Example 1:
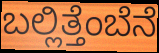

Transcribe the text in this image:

ಬಲ್ಲಿತ್ತೆಂಬೆನೆ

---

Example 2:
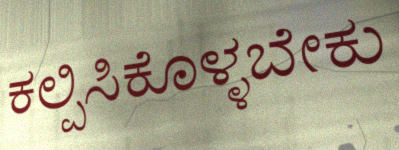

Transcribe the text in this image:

ಕಲ್ಪಿಸಿಕೊಳ್ಳಬೇಕು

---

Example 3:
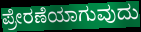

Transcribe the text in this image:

ಪ್ರೇರಣೆಯಾಗುವುದು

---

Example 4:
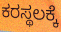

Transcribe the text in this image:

ಕರಸ್ಥಲಕ್ಕೆ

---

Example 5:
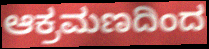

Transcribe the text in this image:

ಆಕ್ರಮಣದಿಂದ